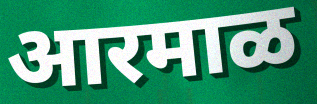
आरमाळ